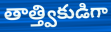
తాత్త్వికుడిగా